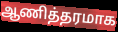
ஆணித்தரமாக